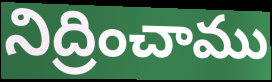
నిద్రించాము